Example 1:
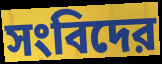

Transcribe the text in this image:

সংবিদের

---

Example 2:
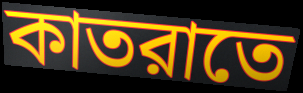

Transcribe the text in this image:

কাতরাতে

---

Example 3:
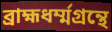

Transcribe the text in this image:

ব্রাহ্মধর্ম্মগ্রন্থে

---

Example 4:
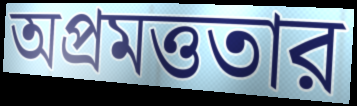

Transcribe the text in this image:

অপ্রমত্ততার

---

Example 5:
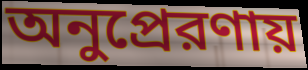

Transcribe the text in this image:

অনুপ্রেরণায়